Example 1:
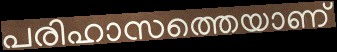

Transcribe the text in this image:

പരിഹാസത്തെയാണ്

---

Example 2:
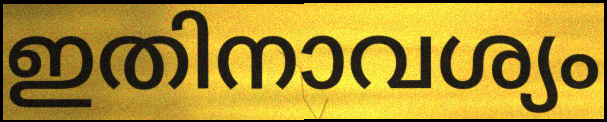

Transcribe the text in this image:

ഇതിനാവശ്യം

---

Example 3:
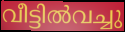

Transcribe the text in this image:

വീട്ടിൽവച്ചു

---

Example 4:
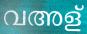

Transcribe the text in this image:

വഅള്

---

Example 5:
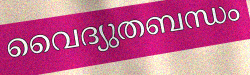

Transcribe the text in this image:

വൈദ്യുതബന്ധം